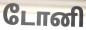
டோனி